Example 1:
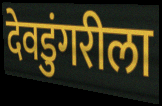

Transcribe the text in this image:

देवडुंगरीला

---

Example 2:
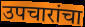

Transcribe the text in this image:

उपचारांचा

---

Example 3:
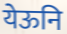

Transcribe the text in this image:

येऊनि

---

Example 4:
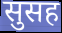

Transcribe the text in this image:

सुसह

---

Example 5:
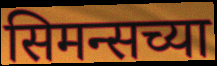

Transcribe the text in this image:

सिमन्सच्या